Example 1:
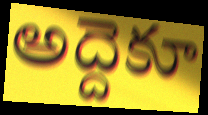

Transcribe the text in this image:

అద్దెకూ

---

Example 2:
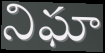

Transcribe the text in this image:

నిఘా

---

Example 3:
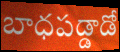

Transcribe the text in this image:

బాధపడ్డాడో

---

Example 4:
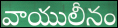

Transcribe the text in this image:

వాయులీనం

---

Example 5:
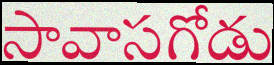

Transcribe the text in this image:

సావాసగోడు